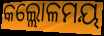
କଲ୍ଲୋଳମୟ